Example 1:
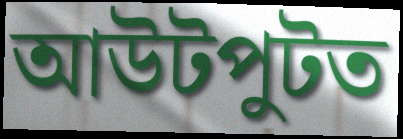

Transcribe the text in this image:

আউটপুটত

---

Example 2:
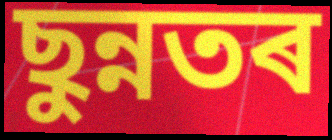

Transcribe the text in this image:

ছুন্নতৰ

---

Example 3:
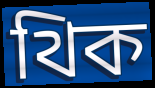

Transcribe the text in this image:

থিক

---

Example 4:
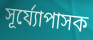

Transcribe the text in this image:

সূৰ্য্যোপাসক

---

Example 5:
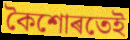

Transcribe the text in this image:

কৈশোৰতেই